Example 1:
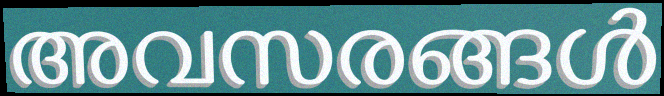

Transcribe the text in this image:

അവസരങ്ങൾ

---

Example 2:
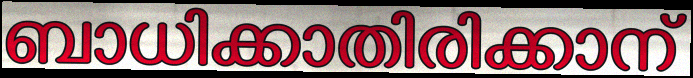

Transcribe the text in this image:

ബാധിക്കാതിരിക്കാന്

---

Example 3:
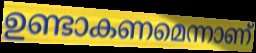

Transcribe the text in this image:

ഉണ്ടാകണമെന്നാണ്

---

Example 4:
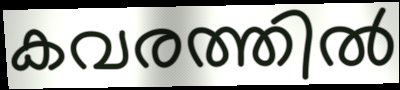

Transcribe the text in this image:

കവരത്തിൽ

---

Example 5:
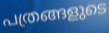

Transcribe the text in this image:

പത്രങ്ങളുടെ